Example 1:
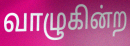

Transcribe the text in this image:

வாழுகின்ற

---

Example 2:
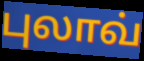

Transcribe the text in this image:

புலாவ்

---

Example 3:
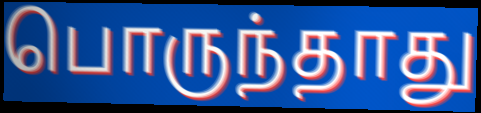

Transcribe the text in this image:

பொருந்தாது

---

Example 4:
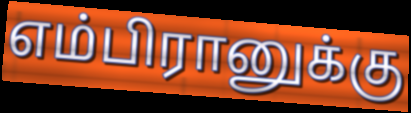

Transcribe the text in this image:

எம்பிரானுக்கு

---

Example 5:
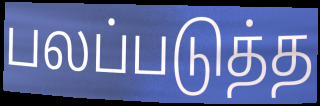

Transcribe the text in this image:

பலப்படுத்த